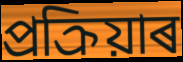
প্ৰক্ৰিয়াৰ